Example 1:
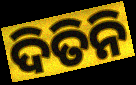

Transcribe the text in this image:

ଦିତିନି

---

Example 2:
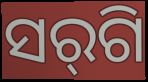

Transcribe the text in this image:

ସର୍‌ଗି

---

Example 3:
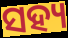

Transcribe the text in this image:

ସହ୍ୟ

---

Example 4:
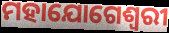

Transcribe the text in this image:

ମହାଯୋଗେଶ୍ୱରୀ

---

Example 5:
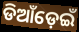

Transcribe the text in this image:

ଡିଆଁଡ଼େଇଁ